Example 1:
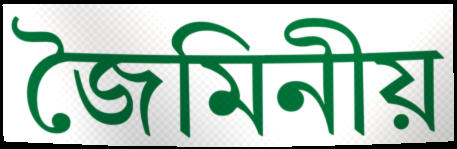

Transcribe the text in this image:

জৈমিনীয়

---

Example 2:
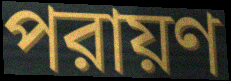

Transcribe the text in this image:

পরায়ণ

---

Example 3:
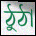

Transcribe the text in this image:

ঠুঠা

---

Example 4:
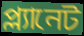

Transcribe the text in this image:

প্ল্যানেট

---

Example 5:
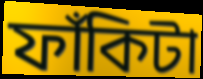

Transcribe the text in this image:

ফাঁকিটা